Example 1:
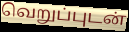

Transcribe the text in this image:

வெறுப்புடன்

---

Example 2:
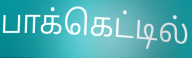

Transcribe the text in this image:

பாக்கெட்டில்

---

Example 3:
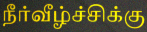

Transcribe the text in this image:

நீர்வீழ்ச்சிக்கு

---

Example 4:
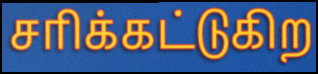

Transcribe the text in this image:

சரிக்கட்டுகிற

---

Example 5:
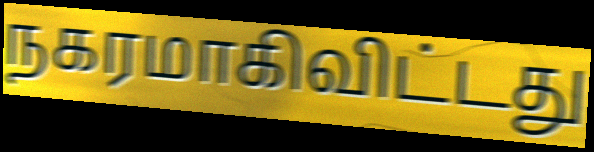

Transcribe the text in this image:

நகரமாகிவிட்டது